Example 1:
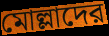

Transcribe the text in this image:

মোল্লাদের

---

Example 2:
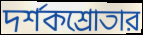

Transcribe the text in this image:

দর্শকশ্রোতার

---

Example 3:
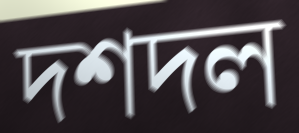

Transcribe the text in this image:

দশদল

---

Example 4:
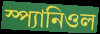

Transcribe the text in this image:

স্প্যানিওল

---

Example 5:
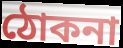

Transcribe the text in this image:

ঠোকনা